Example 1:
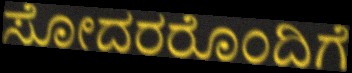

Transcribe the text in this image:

ಸೋದರರೊಂದಿಗೆ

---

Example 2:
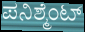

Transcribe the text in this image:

ಪನಿಶ್ಮೆಂಟ್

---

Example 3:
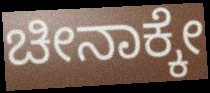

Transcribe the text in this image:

ಚೀನಾಕ್ಕೇ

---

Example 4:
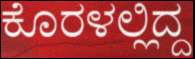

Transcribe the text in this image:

ಕೊರಳಲ್ಲಿದ್ದ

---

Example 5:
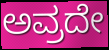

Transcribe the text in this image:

ಅವ್ರದೇ